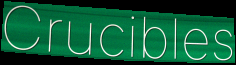
Crucibles